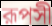
রূপসী